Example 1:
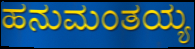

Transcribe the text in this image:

ಹನುಮಂತಯ್ಯ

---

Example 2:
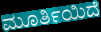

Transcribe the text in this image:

ಮೂರ್ತಿಯಿದೆ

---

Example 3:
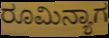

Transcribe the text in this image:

ರೂಮಿನ್ಯಾಗ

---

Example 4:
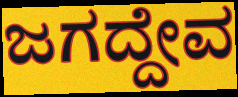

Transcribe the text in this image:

ಜಗದ್ದೇವ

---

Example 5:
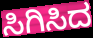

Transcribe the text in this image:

ಸಿಗಿಸಿದ